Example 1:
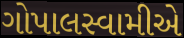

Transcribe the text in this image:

ગોપાલસ્વામીએ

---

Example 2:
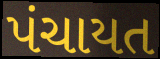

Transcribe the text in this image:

પંચાયત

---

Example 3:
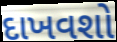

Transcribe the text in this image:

દાખવશો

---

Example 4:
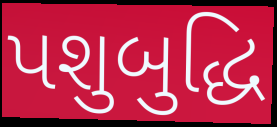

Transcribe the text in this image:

પશુબુદ્ધિ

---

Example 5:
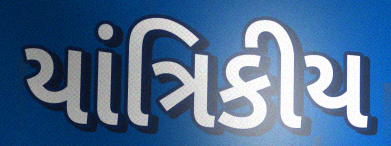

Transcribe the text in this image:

યાંત્રિકીય